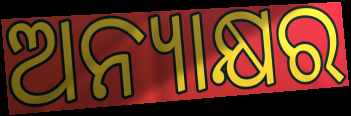
ଅନ୍ୟାକ୍ଷର